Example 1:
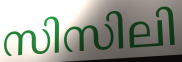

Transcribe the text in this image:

സിസിലി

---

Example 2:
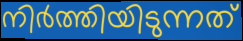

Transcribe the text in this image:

നിർത്തിയിടുന്നത്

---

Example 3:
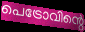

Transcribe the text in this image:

പെട്രോവിന്റെ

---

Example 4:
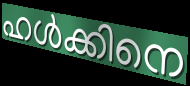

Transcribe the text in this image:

ഹൾക്കിനെ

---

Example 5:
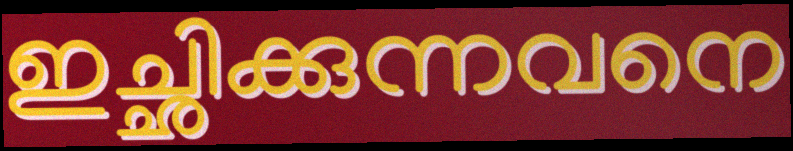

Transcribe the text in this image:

ഇച്ഛിക്കുന്നവനെ